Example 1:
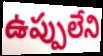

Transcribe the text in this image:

ఉప్పులేని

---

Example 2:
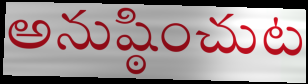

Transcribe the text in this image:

అనుష్ఠించుట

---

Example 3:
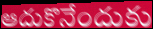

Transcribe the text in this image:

ఆదుకొనేందుకు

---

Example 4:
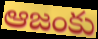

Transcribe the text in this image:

ఆజంకు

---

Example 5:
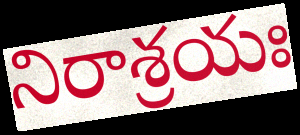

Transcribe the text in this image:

నిరాశ్రయః